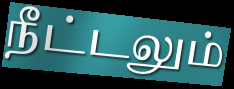
நீட்டலும்